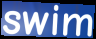
swim